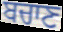
ਬਚਾਣ